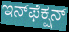
ಇನ್‌ಫೆಕ್ಷನ್